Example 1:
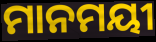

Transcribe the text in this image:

ମାନମୟୀ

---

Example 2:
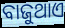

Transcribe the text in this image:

ବାଜୁଥାଏ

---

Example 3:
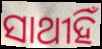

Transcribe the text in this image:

ସାଥୀହିଁ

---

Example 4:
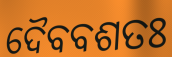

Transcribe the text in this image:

ଦୈବବଶତଃ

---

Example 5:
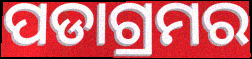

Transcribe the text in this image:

ପଡାଗ୍ରମର